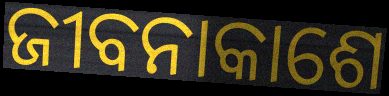
ଜୀବନାକାଶେ